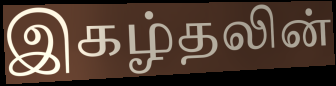
இகழ்தலின்